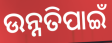
ଉନ୍ନତିପାଇଁ